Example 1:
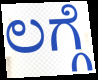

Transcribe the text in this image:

ಲಗ್ಗೆ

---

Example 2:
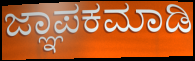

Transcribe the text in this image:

ಜ್ಞಾಪಕಮಾಡಿ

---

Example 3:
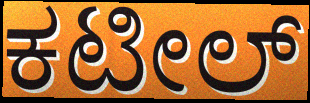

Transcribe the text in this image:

ಕಟೀಲ್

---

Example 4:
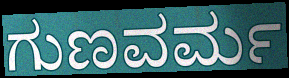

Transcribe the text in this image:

ಗುಣವರ್ಮ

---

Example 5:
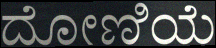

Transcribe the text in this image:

ದೋಣಿಯೆ